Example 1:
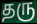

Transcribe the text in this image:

தரு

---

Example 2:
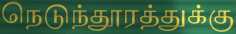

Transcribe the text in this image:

நெடுந்தூரத்துக்கு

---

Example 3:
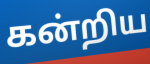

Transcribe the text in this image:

கன்றிய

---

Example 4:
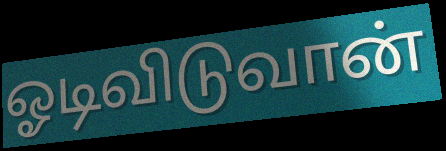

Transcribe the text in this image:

ஓடிவிடுவான்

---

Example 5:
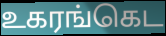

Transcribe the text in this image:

உகரங்கெட